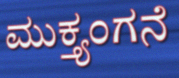
ಮುಕ್ತ್ಯಂಗನೆ